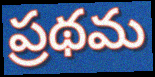
ప్రథమ